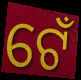
ଟେଁ